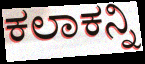
ಕಲಾಕನ್ನಿ